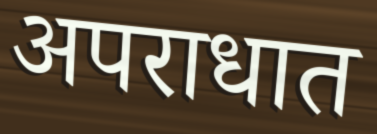
अपराधात